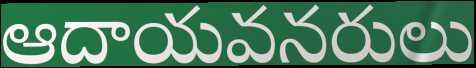
ఆదాయవనరులు